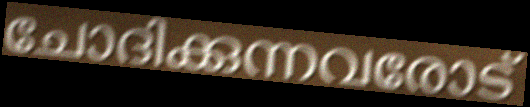
ചോദിക്കുന്നവരോട്